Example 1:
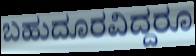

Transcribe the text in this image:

ಬಹುದೂರವಿದ್ದರೂ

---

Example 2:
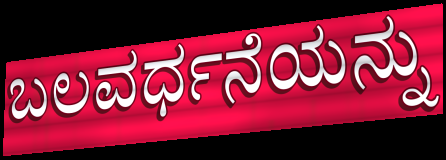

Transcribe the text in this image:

ಬಲವರ್ಧನೆಯನ್ನು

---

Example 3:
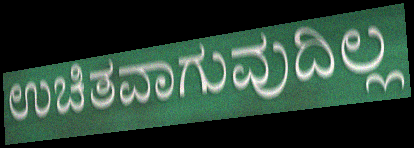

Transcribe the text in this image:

ಉಚಿತವಾಗುವುದಿಲ್ಲ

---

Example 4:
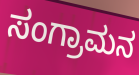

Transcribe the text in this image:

ಸಂಗ್ರಾಮನ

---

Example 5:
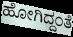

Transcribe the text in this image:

ಹೋಗಿದ್ದಂತೆ